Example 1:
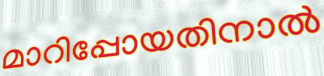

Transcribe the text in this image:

മാറിപ്പോയതിനാൽ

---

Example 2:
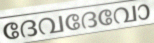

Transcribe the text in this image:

ദേവദേവോ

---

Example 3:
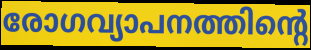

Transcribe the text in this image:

രോഗവ്യാപനത്തിന്റെ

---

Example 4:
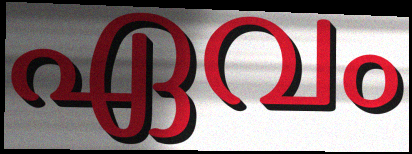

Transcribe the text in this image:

ഏവം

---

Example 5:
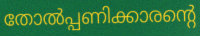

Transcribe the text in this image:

തോൽപ്പണിക്കാരന്റെ